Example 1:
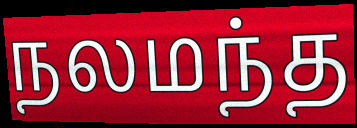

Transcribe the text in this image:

நலமந்த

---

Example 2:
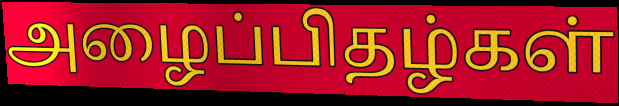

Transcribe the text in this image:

அழைப்பிதழ்கள்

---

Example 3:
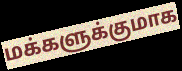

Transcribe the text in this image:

மக்களுக்குமாக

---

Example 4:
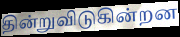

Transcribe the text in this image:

தின்றுவிடுகின்றன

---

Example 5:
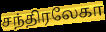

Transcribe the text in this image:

சந்திரலேகா